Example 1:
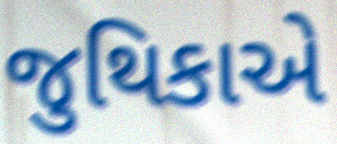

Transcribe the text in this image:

જુથિકાએ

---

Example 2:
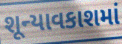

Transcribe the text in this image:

શૂન્યાવકાશમાં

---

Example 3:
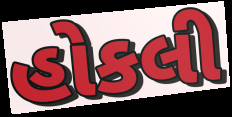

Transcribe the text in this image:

હોકલી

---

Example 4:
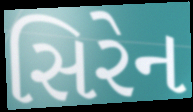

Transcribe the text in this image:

સિરેન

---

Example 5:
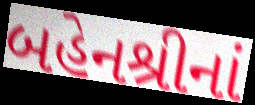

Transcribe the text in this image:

બહેનશ્રીનાં